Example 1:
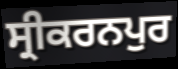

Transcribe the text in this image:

ਸ੍ਰੀਕਰਨਪੁਰ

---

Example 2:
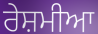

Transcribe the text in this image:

ਰੇਸ਼ਮੀਆ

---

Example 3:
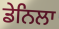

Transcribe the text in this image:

ਡੇਨਿਲਾ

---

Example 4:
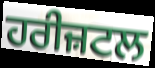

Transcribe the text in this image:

ਹਰੀਜ਼ਟਲ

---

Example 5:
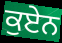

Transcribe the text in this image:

ਕੁਏਨ